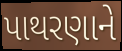
પાથરણાને